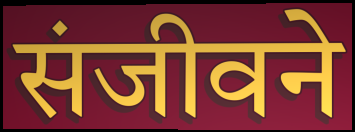
संजीवने